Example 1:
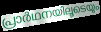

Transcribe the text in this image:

പ്രാർഥനയിലൂടെയും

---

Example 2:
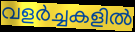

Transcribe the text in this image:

വളർച്ചകളിൽ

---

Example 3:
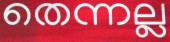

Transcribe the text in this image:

തെന്നല്ല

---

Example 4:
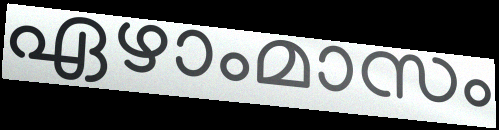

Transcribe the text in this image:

ഏഴാംമാസം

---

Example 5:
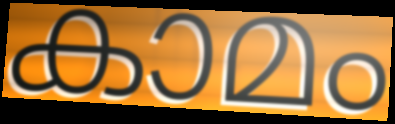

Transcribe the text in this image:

കാമം